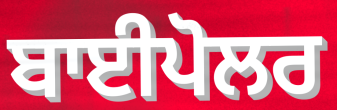
ਬਾਈਪੋਲਰ